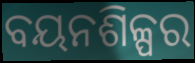
ବୟନଶିଳ୍ପର